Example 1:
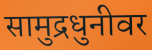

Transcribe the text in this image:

सामुद्रधुनीवर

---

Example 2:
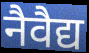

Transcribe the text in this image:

नैवैद्य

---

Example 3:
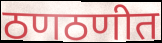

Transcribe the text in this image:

ठणठणीत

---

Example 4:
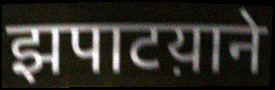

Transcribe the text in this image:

झपाटय़ाने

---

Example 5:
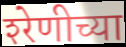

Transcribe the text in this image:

श्रेणीच्या